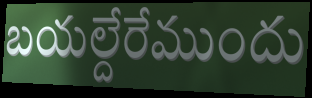
బయల్దేరేముందు